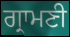
ਗ੍ਰਾਮਣੀ